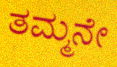
ತಮ್ಮನೇ